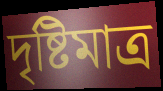
দৃষ্টিমাত্র